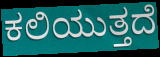
ಕಲಿಯುತ್ತದೆ